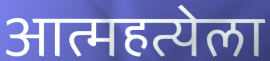
आत्महत्येला